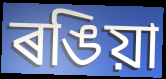
ৰঙিয়া